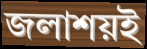
জলাশয়ই